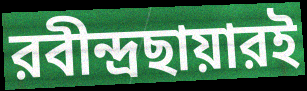
রবীন্দ্রছায়ারই